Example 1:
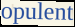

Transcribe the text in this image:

opulent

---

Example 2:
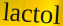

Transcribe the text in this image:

lactol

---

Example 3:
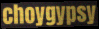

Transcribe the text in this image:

choygypsy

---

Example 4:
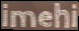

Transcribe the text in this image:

imehi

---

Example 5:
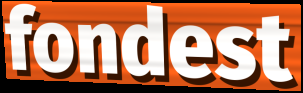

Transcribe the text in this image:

fondest